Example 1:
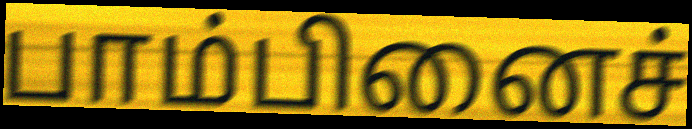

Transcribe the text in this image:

பாம்பினைச்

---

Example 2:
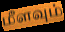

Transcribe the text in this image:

மீளவும்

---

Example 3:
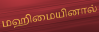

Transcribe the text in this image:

மஹிமையினால்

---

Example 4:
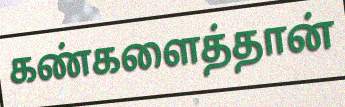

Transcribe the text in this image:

கண்களைத்தான்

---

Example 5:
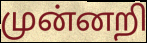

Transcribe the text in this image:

முன்னறி